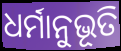
ଧର୍ମାନୁଭୂତି